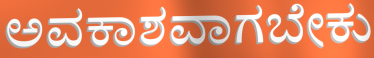
ಅವಕಾಶವಾಗಬೇಕು